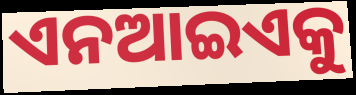
ଏନଆଇଏକୁ